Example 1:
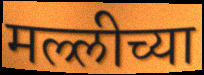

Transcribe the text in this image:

मल्लीच्या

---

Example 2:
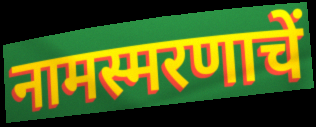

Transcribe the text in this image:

नामस्मरणाचें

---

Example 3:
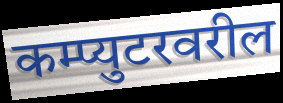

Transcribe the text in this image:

कम्प्युटरवरील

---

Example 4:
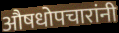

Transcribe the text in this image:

औषधोपचारांनी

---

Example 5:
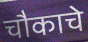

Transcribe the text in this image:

चौकाचे